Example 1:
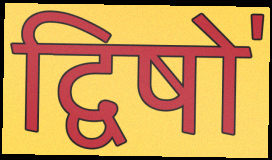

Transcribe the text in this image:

द्विषो॑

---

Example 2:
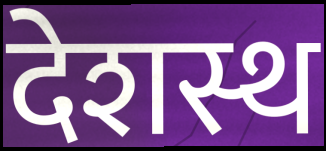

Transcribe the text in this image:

देशस्थ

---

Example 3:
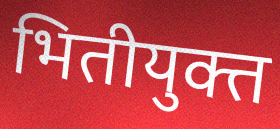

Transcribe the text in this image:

भितीयुक्त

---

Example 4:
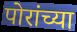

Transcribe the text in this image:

पोरांच्या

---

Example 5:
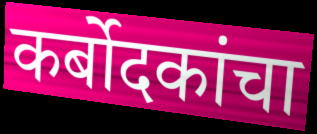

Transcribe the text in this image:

कर्बोदकांचा